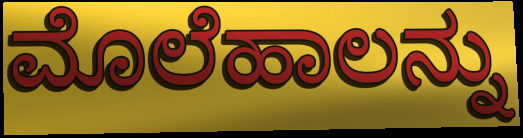
ಮೊಲೆಹಾಲನ್ನು